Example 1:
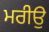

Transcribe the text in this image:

ਮਰੀਉ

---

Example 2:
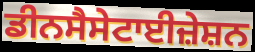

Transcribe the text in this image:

ਡੀਨਸੈਸੇਟਾਈਜ਼ੇਸ਼ਨ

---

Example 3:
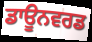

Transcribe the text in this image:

ਡਾਊਨਵਰਡ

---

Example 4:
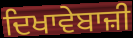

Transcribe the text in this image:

ਦਿਖਾਵੇਬਾਜ਼ੀ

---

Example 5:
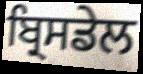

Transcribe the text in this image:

ਬ੍ਰਿਸਡੇਲ